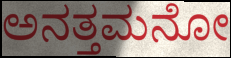
ಅನತ್ತಮನೋ